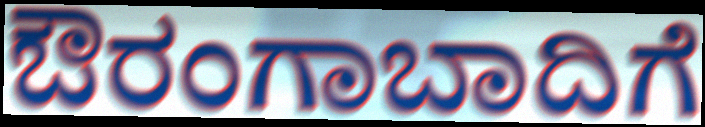
ಔರಂಗಾಬಾದಿಗೆ